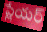
ప్లేయర్